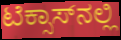
ಟೆಕ್ಸಾಸ್‌ನಲ್ಲಿ